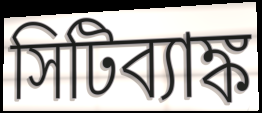
সিটিব্যাঙ্ক